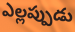
ఎల్లప్పుడు